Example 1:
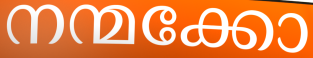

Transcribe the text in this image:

നന്മക്കോ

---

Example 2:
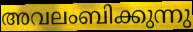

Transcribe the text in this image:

അവലംബിക്കുന്നു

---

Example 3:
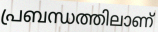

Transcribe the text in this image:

പ്രബന്ധത്തിലാണ്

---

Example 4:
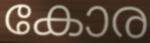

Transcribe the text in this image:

കോര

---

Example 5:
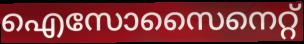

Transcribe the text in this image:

ഐസോസൈനെറ്റ്